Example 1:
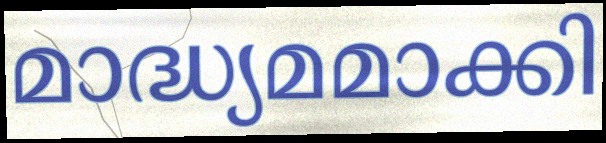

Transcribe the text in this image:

മാദ്ധ്യമമാക്കി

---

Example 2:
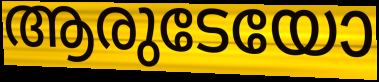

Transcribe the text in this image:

ആരുടേയോ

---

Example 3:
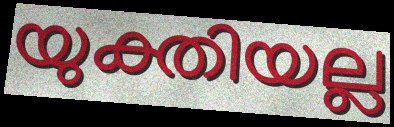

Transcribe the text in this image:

യുക്തിയല്ല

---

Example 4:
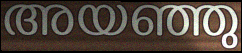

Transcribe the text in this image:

അയഞ്ഞു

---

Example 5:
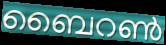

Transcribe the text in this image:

ബൈറൺ